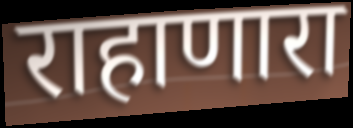
राहाणारा